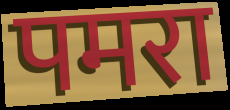
पमरा